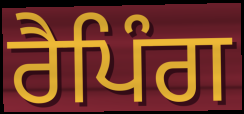
ਰੈਪਿੰਗ